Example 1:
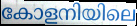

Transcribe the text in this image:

കോളനിയിലെ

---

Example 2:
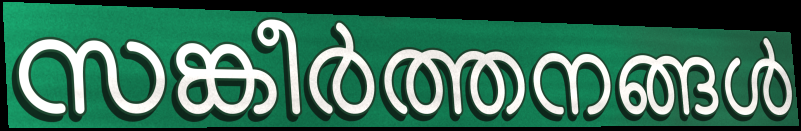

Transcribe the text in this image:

സങ്കീർത്തനങ്ങൾ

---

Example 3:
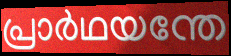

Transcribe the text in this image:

പ്രാർഥയന്തേ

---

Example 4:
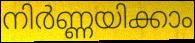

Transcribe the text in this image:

നിർണ്ണയിക്കാം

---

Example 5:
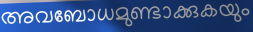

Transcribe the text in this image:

അവബോധമുണ്ടാക്കുകയും